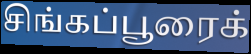
சிங்கப்பூரைக்